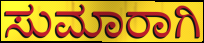
ಸುಮಾರಾಗಿ